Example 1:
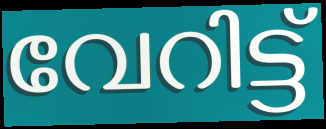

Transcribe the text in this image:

വേറിട്ട്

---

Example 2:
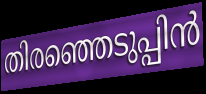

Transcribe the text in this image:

തിരഞ്ഞെടുപ്പിൻ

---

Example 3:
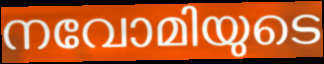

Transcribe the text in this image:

നവോമിയുടെ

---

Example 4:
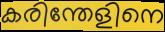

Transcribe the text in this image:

കരിന്തേളിനെ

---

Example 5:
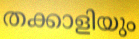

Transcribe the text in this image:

തക്കാളിയും